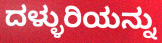
ದಳ್ಳುರಿಯನ್ನು